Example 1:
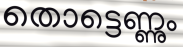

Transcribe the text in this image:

തൊട്ടെണ്ണും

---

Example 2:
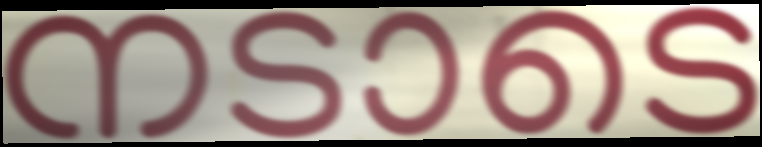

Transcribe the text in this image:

നടാടെ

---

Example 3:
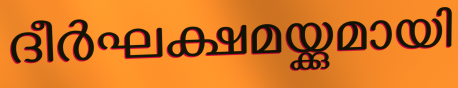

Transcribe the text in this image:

ദീർഘക്ഷമയ്ക്കുമായി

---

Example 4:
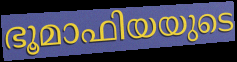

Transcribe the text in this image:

ഭൂമാഫിയയുടെ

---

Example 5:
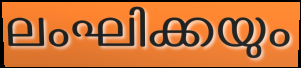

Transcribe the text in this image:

ലംഘിക്കയും